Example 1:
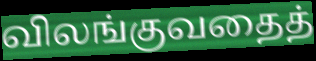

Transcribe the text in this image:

விலங்குவதைத்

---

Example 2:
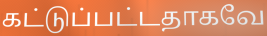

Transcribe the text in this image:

கட்டுப்பட்டதாகவே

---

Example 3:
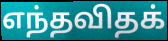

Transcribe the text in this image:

எந்தவிதக்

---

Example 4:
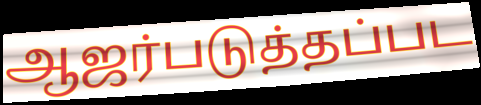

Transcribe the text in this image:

ஆஜர்படுத்தப்பட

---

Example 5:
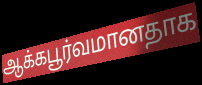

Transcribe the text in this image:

ஆக்கபூர்வமானதாக